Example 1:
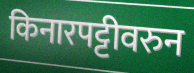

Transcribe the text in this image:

किनारपट्टीवरुन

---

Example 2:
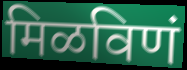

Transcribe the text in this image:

मिळविणं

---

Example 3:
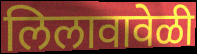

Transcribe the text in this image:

लिलावावेळी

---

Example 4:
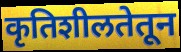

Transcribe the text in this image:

कृतिशीलतेतून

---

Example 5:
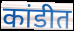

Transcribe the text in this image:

कांडीत